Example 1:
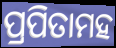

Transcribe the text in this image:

ପ୍ରପିତାମହ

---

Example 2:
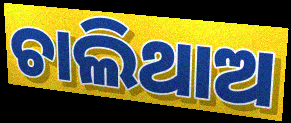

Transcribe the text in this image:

ଚାଲିଥାଅ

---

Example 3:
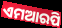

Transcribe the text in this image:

ଏମଆରପି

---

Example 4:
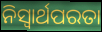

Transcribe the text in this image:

ନିସ୍ଵାର୍ଥପରତା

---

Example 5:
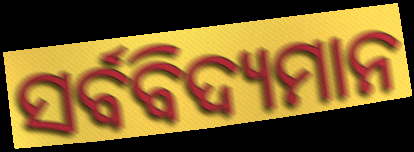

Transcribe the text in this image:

ସର୍ବବିଦ୍ୟମାନ